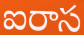
ఐరాస